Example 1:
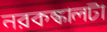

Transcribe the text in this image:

নরকঙ্কালটা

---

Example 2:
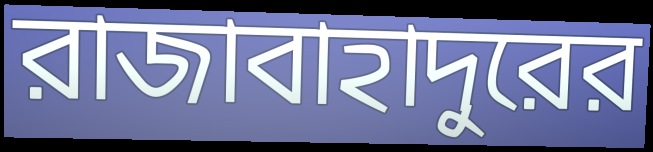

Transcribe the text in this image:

রাজাবাহাদুরের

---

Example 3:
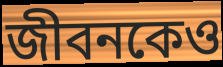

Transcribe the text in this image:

জীবনকেও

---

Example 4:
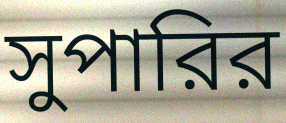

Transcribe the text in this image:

সুপারির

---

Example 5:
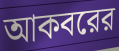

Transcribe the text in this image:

আকবরের